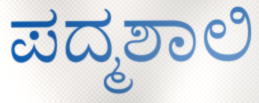
ಪದ್ಮಶಾಲಿ